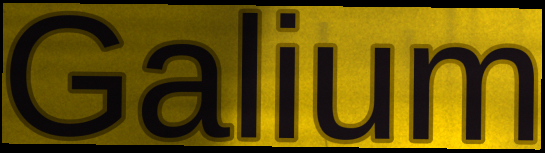
Galium